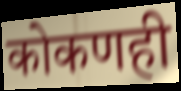
कोकणही